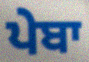
ਪੇਬਾ